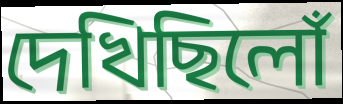
দেখিছিলোঁ